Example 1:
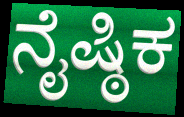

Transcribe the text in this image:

ನೈಷ್ಠಿಕ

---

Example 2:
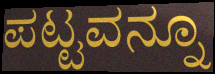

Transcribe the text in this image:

ಪಟ್ಟವನ್ನೂ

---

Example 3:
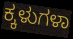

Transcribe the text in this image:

ಕ್ಕಳುಗಳಾ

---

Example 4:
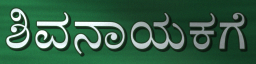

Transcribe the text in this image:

ಶಿವನಾಯಕಗೆ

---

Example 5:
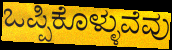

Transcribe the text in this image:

ಒಪ್ಪಿಕೊಳ್ಳುವೆವು